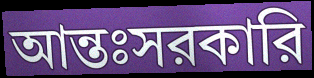
আন্তঃসরকারি